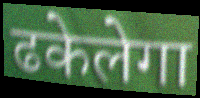
ढकेलेगा